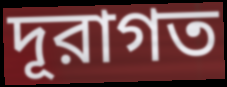
দূরাগত